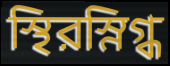
স্থিরস্নিগ্ধ